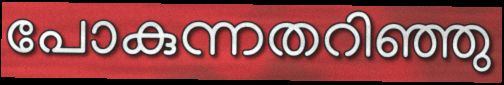
പോകുന്നതറിഞ്ഞു